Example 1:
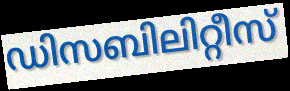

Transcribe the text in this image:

ഡിസബിലിറ്റീസ്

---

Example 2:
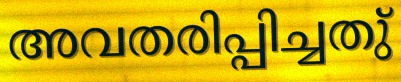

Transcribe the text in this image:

അവതരിപ്പിച്ചതു്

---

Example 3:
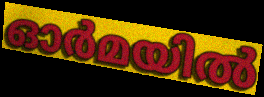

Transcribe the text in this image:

ഓർമയിൽ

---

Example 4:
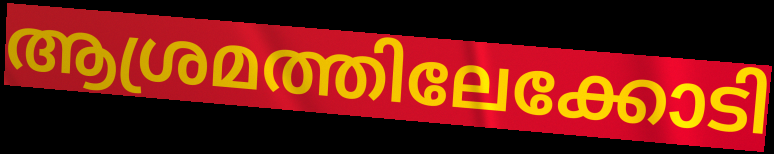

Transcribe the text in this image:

ആശ്രമത്തിലേക്കോടി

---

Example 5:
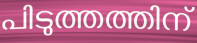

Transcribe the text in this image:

പിടുത്തത്തിന്